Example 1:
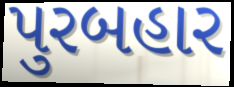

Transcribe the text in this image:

પુરબહાર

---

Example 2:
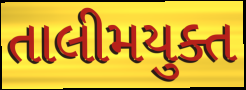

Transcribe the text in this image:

તાલીમયુક્ત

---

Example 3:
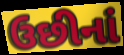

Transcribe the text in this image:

ઉછીનાં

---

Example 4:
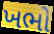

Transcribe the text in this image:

ખભો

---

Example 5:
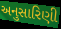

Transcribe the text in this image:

અનુસારિણી